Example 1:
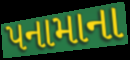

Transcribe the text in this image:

પનામાના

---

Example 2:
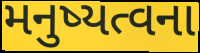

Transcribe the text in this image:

મનુષ્યત્વના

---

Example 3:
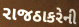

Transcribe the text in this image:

રાજઠાકરેની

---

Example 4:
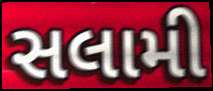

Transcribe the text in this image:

સલામી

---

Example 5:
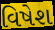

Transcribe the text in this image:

વિષેશ